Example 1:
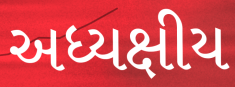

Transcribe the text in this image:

અધ્યક્ષીય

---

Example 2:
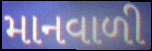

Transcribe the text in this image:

માનવાળી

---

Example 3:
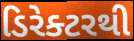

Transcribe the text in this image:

ડિરેક્ટરથી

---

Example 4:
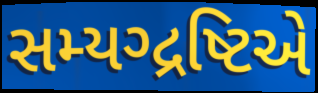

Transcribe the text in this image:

સમ્યગ્દ્રષ્ટિએ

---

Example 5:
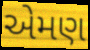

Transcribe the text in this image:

એમણ